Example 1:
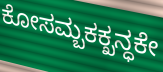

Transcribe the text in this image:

ಕೋಸಮ್ಬಕಕ್ಖನ್ಧಕೇ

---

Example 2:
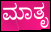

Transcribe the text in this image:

ಮಾತೃ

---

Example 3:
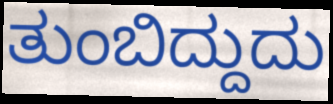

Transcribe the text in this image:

ತುಂಬಿದ್ದುದು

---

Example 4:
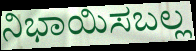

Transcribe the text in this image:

ನಿಭಾಯಿಸಬಲ್ಲ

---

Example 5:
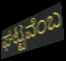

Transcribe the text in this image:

ಘಟ್ಟವೆಂಬ